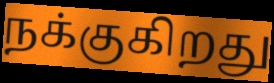
நக்குகிறது